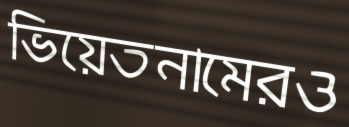
ভিয়েতনামেরও